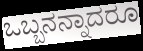
ಒಬ್ಬನನ್ನಾದರೂ